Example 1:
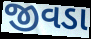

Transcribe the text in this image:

જીવડા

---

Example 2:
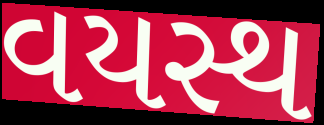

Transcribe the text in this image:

વયસ્થ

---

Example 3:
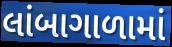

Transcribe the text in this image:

લાંબાગાળામાં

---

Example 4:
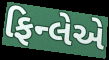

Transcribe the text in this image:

ફિન્લેએ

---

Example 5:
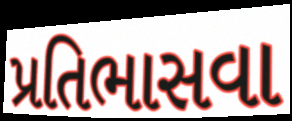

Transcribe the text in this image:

પ્રતિભાસવા